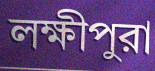
লক্ষীপুরা